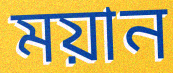
ময়ান